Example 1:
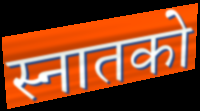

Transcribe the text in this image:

स्नातको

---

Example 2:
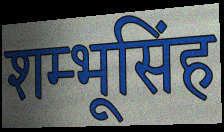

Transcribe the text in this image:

शम्भूसिंह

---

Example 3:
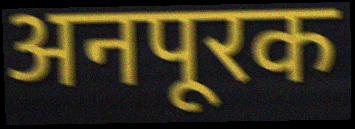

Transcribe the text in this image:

अनपूरक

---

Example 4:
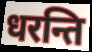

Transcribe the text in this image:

धरन्ति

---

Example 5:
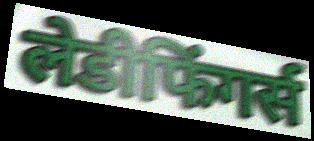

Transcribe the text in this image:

लेडीफिंगर्स